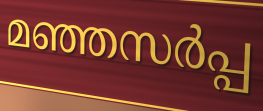
മഞ്ഞസർപ്പ